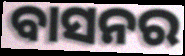
ବାସନର